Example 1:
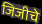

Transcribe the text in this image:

जिजीचे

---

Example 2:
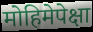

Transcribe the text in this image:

मोहिमेपेक्षा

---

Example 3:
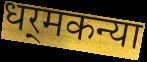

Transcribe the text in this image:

धर्मकन्या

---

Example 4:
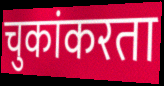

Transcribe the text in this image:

चुकांकरता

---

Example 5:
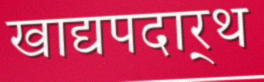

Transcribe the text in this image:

खाद्यपदार्थ